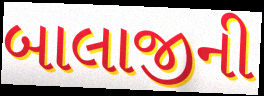
બાલાજીની